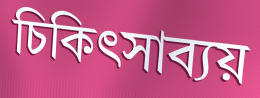
চিকিৎসাব্যয়